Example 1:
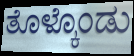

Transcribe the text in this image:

ತೊಳ್ಕೊಂಡು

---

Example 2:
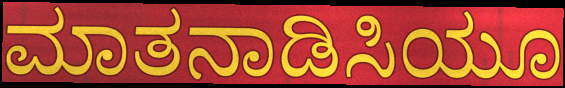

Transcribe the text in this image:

ಮಾತನಾಡಿಸಿಯೂ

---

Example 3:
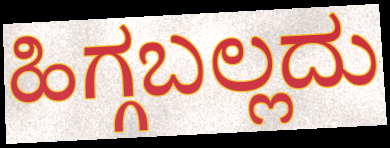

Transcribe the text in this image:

ಹಿಗ್ಗಬಲ್ಲದು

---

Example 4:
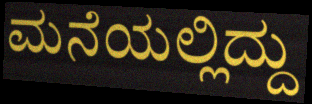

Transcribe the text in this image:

ಮನೆಯಲ್ಲಿದ್ದು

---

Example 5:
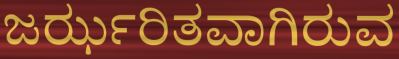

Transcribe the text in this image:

ಜರ್ಝರಿತವಾಗಿರುವ